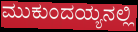
ಮುಕುಂದಯ್ಯನಲ್ಲಿ